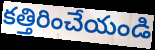
కత్తిరించేయండి